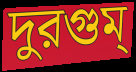
দুরগুম্